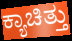
ಕ್ಯಾಚಿತ್ತು